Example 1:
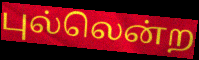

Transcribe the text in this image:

புல்லென்ற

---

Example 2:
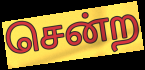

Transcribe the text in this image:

சென்ற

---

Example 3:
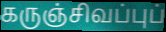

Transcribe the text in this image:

கருஞ்சிவப்புப்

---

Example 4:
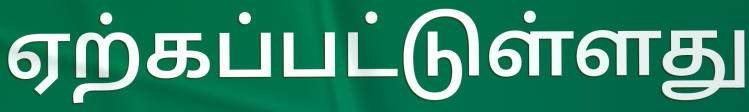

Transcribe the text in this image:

ஏற்கப்பட்டுள்ளது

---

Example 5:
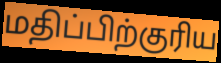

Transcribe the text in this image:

மதிப்பிற்குரிய